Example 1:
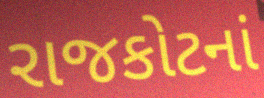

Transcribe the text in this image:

રાજકોટનાં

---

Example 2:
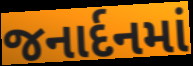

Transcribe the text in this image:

જનાર્દનમાં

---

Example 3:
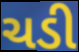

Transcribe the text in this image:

ચડી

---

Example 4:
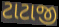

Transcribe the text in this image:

ટાટાજી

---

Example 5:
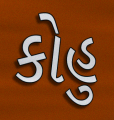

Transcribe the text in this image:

કોહુ